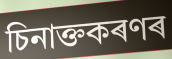
চিনাক্তকৰণৰ